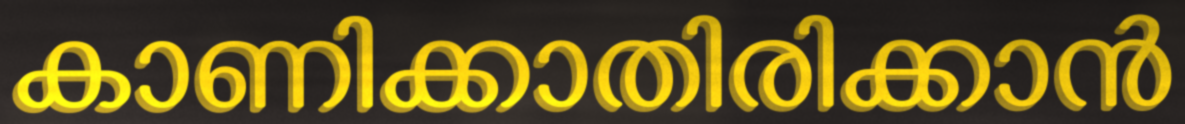
കാണിക്കാതിരിക്കാൻ